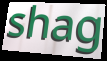
shag